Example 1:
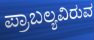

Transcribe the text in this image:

ಪ್ರಾಬಲ್ಯವಿರುವ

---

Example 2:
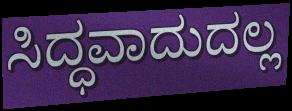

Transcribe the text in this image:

ಸಿದ್ಧವಾದುದಲ್ಲ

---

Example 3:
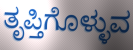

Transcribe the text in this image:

ತೃಪ್ತಿಗೊಳ್ಳುವ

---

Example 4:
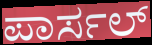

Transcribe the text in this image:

ಪಾರ್ಸಲ್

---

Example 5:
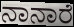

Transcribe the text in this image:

ನಾನಾರೆ